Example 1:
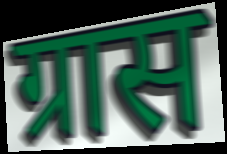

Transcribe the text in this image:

ग्रास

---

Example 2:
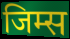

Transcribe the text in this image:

जिम्स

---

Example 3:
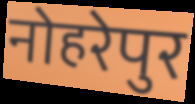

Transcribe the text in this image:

नोहरेपुर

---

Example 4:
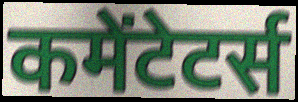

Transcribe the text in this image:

कमेंटेटर्स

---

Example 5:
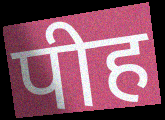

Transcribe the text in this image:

पीह